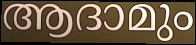
ആദാമും